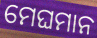
ମେଘମାନ